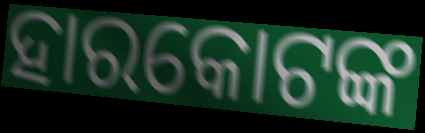
ହାରକୋଟଙ୍କ